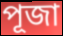
পূজা